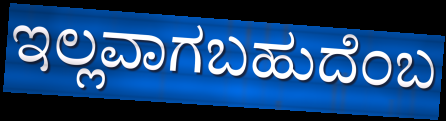
ಇಲ್ಲವಾಗಬಹುದೆಂಬ